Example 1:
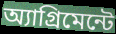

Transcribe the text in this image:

অ্যাগ্রিমেন্টে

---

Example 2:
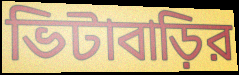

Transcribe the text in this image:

ভিটাবাড়ির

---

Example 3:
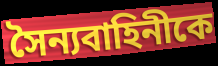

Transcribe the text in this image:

সৈন্যবাহিনীকে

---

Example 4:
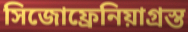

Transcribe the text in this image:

সিজোফ্রেনিয়াগ্রস্ত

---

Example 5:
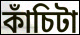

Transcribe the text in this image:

কাঁচিটা